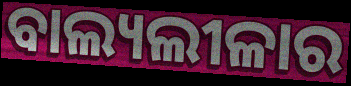
ବାଲ୍ୟଲୀଳାର